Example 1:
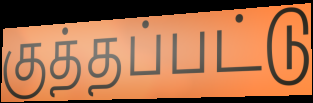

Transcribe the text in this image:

குத்தப்பட்டு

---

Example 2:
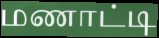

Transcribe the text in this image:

மணாட்டி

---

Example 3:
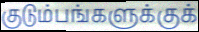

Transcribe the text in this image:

குடும்பங்களுக்குக்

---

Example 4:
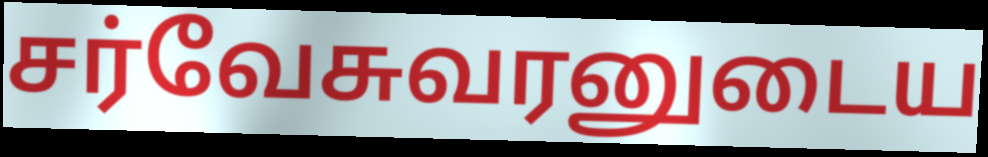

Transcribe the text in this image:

சர்வேசுவரனுடைய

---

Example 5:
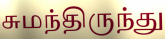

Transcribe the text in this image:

சுமந்திருந்து